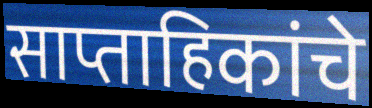
साप्ताहिकांचे